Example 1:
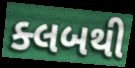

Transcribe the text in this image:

ક્લબથી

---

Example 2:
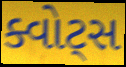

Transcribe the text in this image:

ક્વોટ્સ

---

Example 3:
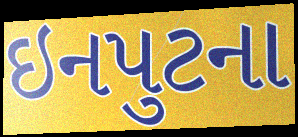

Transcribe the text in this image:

ઇનપુટના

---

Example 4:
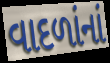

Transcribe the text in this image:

વાદળાંનાં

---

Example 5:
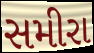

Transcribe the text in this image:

સમીરા